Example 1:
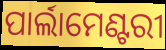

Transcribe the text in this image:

ପାର୍ଲାମେଣ୍ଟରୀ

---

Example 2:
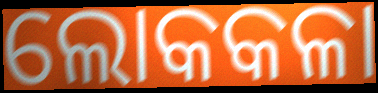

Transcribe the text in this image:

ଲୋକକଳା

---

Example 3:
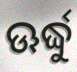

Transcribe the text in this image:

ଊର୍ଦ୍ଧୁ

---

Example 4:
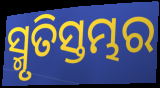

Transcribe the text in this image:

ସ୍ମୃତିସ୍ତମ୍ଭର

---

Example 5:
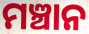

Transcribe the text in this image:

ମଞ୍ଚାନ